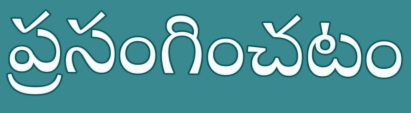
ప్రసంగించటం